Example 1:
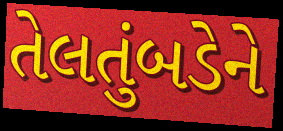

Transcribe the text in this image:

તેલતુંબડેને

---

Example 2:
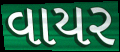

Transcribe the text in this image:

વાયર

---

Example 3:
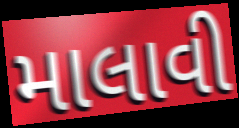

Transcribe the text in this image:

માલાવી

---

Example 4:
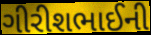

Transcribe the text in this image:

ગીરીશભાઈની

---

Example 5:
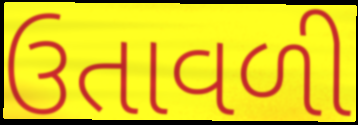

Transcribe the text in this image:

ઉતાવળી